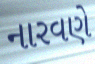
નારવણે